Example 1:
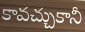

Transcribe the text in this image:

కావచ్చుకానీ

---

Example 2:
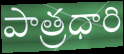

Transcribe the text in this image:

పాత్రధారి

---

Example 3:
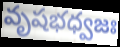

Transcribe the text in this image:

వృషభధ్వజః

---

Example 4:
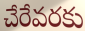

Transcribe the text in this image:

చేరేవరకు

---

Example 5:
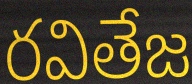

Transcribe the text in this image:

రవితేజ